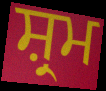
ਸ਼੍ਰਮ